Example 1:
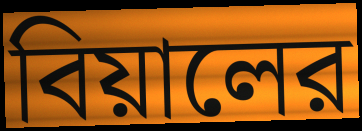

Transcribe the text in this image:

বিয়ালের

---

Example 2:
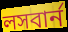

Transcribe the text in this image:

লসবার্ন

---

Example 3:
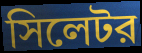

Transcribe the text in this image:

সিলেটর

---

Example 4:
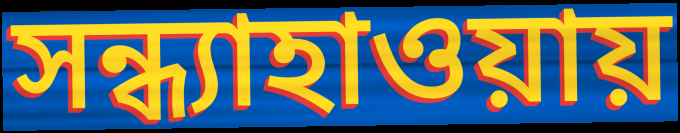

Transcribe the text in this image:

সন্ধ্যাহাওয়ায়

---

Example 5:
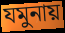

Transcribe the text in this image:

যমুনায়